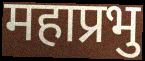
महाप्रभु